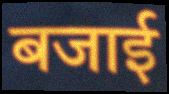
बजाई